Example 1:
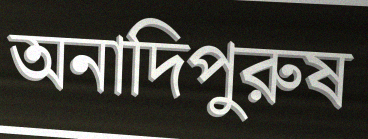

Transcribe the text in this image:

অনাদিপুরুষ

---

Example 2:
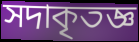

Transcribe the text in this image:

সদাকৃতজ্ঞ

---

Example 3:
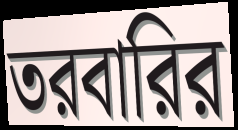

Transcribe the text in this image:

তরবারির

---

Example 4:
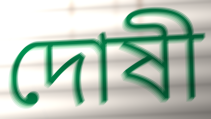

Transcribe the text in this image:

দোষী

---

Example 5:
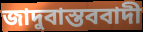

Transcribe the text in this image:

জাদুবাস্তববাদী